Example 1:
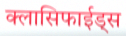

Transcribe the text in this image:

क्लासिफाईड्स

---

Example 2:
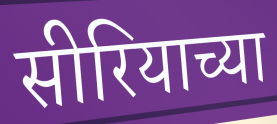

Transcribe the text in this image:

सीरियाच्या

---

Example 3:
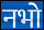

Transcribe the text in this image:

नभो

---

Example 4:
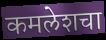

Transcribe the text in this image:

कमलेशचा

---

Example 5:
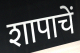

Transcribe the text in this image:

शापाचें